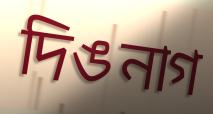
দিঙনাগ